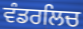
ਵੰਡਰਲਿਚ